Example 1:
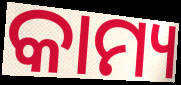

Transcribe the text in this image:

କାମ୍ୟ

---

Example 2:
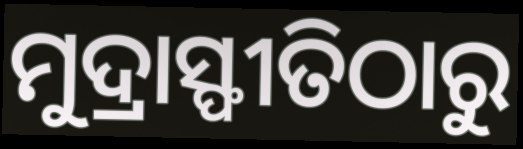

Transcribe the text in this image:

ମୁଦ୍ରାସ୍ଫୀତିଠାରୁ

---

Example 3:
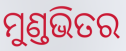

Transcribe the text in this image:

ମୁଣ୍ଡଭିତର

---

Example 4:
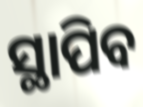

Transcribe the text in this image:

ସ୍ଥାପିବ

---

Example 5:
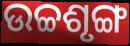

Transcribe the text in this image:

ଉଚ୍ଚଶୃଙ୍ଗ